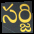
సర్జి